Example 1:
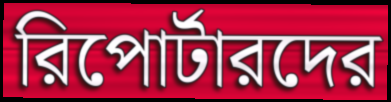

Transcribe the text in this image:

রিপোর্টারদের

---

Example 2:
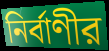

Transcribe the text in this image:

নির্বাণীর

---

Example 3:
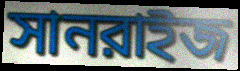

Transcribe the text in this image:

সানরাইজ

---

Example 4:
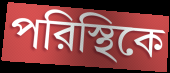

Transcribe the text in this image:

পরিস্থিকে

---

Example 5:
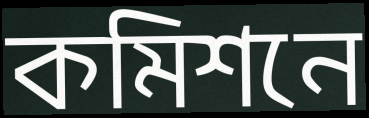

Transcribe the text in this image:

কমিশনে